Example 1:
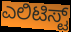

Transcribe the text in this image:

ಎಲಿಟಿಸ್ಟ್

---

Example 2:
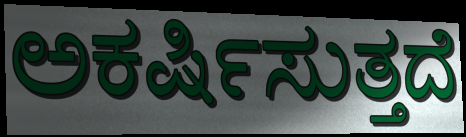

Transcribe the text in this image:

ಅಕರ್ಷಿಸುತ್ತದೆ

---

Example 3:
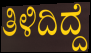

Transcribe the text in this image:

ತಿಳಿದಿದ್ದೆ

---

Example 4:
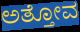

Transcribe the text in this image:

ಅತ್ತೋವ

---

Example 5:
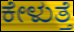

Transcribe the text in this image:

ಕೇಳುತ್ತೆ